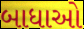
બાધાઓ